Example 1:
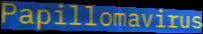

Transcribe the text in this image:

Papillomavirus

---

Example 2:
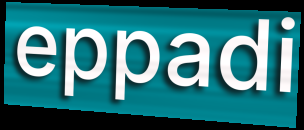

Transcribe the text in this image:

eppadi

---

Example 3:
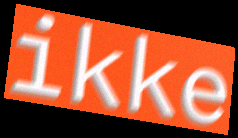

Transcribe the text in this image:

ikke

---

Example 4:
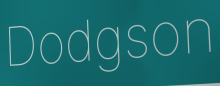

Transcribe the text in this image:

Dodgson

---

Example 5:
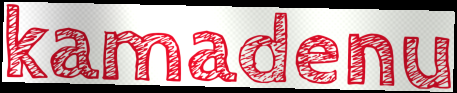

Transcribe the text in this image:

kamadenu